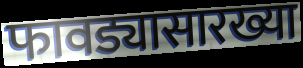
फावड्यासारख्या